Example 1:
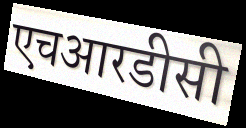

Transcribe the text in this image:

एचआरडीसी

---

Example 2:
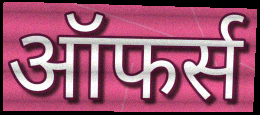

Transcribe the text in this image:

ऑफर्स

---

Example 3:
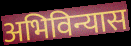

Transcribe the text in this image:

अभिविन्यास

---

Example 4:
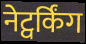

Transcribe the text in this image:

नेट्वर्किंग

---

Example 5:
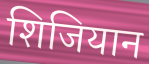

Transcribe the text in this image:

शिजियान